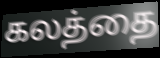
கலத்தை